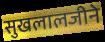
सुखलालजीने